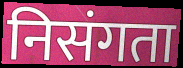
निसंगता